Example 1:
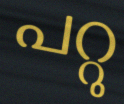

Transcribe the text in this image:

പറ്റു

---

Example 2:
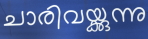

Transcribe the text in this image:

ചാരിവയ്ക്കുന്നു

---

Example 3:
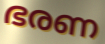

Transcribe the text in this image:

ഭരണ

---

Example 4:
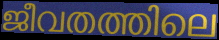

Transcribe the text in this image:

ജീവതത്തിലെ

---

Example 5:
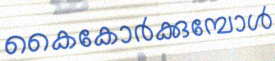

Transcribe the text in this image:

കൈകോർക്കുമ്പോൾ